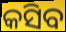
କସିବ